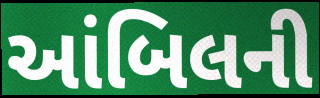
આંબિલની